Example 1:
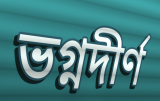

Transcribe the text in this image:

ভগ্নদীর্ণ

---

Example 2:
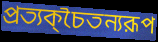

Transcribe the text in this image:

প্রত্যক্‌চৈতন্যরূপ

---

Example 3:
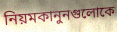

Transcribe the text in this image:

নিয়মকানুনগুলোকে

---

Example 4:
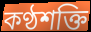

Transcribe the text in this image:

কণ্ঠশক্তি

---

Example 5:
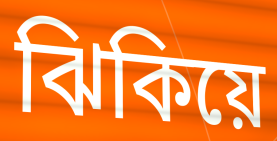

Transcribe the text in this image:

ঝিকিয়ে